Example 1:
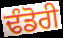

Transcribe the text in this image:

ਢੰਡੋਰੀ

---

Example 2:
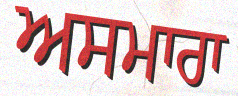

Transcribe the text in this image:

ਅਸਮਾਰਾ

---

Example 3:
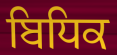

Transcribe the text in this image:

ਬਿਧਿਕ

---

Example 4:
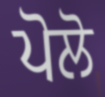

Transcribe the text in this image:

ਪੋਲੋ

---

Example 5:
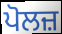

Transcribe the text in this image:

ਪੋਲਜ਼